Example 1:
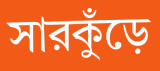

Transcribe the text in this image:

সারকুঁড়ে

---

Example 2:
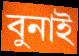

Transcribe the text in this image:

বুনাই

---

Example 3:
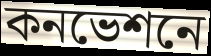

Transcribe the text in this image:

কনভেশনে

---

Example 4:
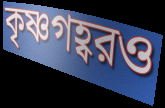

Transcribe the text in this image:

কৃষ্ণগহ্বরও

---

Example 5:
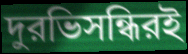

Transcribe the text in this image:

দুরভিসন্ধিরই